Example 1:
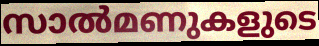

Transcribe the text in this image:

സാൽമണുകളുടെ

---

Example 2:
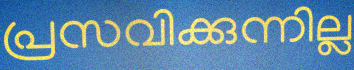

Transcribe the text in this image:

പ്രസവിക്കുന്നില്ല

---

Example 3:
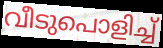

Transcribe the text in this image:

വീടുപൊളിച്ച്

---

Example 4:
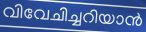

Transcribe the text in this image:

വിവേചിച്ചറിയാൻ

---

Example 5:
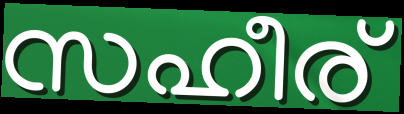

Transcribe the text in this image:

സഹീര്